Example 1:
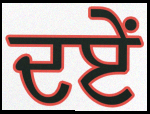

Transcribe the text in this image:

ਦਏਂ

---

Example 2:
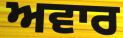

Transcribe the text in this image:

ਅਵਾਰ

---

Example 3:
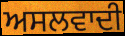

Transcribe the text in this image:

ਅਸਲਵਾਦੀ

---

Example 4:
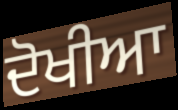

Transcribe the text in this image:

ਦੋਖੀਆ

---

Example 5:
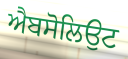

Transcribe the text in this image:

ਐਬਸੋਲਿਉਟ